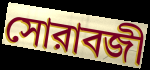
সোরাবজী